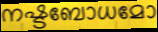
നഷ്ടബോധമോ